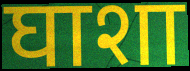
घाशा